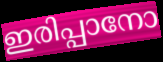
ഇരിപ്പാനോ